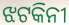
ଝଟକିନୀ